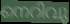
നെറിവു